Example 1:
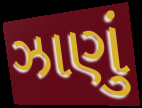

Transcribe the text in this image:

ઝાણું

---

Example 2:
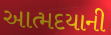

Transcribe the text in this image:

આત્મદયાની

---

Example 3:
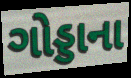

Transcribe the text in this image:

ગોડ્ડાના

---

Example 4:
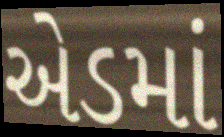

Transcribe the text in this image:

એડમાં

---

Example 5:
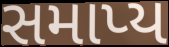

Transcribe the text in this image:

સમાપ્ય